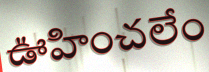
ఊహించలేం